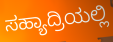
ಸಹ್ಯಾದ್ರಿಯಲ್ಲಿ